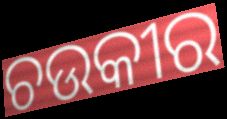
ଚଉକୀର